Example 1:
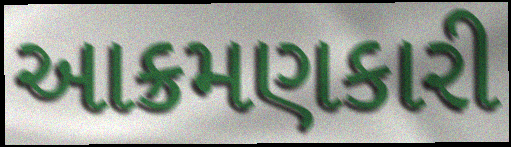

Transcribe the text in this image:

આક્રમણકારી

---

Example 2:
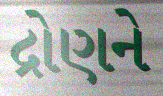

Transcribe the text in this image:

દ્રોણને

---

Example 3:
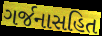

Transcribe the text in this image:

ગર્જનાસહિત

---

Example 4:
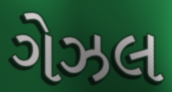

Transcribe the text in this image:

ગેઝલ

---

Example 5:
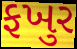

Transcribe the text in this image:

ફખુર